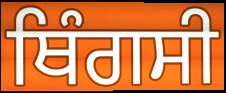
ਥਿੰਗਸੀ